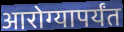
आरोग्यापर्यंत